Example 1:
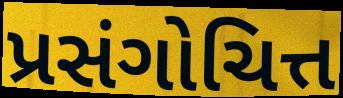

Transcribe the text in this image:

પ્રસંગોચિત્ત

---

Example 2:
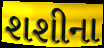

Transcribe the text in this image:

શશીના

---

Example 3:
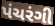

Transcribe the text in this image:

પંચરંગી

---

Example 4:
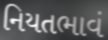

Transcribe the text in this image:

નિયતભાવં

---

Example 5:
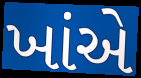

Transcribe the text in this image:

ખાંએ